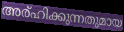
അര്ഹിക്കുന്നതുമായ